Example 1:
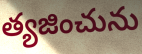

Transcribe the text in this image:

త్యజించును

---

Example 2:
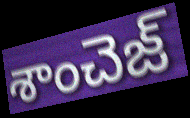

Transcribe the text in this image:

శాంచెజ్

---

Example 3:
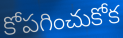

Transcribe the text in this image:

కోపగించుకోక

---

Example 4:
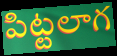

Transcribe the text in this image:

పిట్టలాగ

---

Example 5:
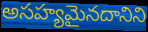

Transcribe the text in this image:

అసహ్యమైనదానిని